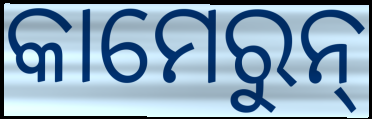
କାମେରୁନ୍